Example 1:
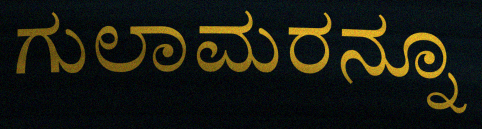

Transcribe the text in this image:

ಗುಲಾಮರನ್ನೂ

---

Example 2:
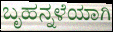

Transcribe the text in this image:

ಬೃಹನ್ನಳೆಯಾಗಿ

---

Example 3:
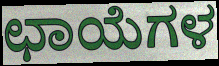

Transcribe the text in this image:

ಛಾಯೆಗಳ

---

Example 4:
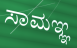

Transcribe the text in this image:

ಸಾಮಞ್ಞ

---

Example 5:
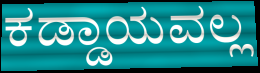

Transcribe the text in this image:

ಕಡ್ಡಾಯವಲ್ಲ